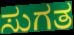
ಸುಗತ